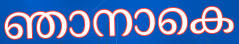
ഞാനാകെ